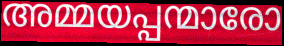
അമ്മയപ്പന്മാരോ